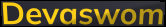
Devaswom